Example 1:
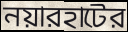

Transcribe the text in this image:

নয়ারহাটের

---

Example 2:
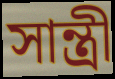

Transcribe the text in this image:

সান্ত্রী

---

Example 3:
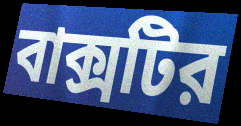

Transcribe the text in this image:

বাক্সটির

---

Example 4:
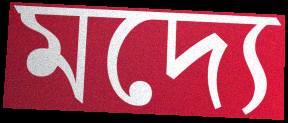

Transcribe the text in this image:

মদ্যে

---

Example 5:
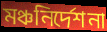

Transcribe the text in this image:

মঞ্চনির্দেশনা